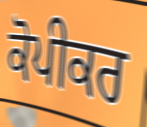
ਕੋਪੀਕਰ